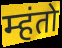
म्हंतो